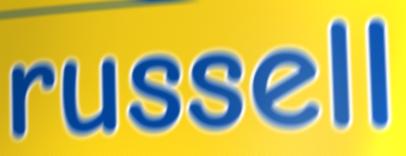
russell